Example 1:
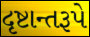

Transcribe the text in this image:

દૃષ્ટાન્તરૂપે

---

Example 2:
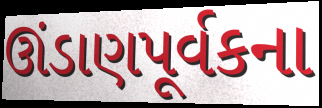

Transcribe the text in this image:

ઊંડાણપૂર્વકના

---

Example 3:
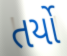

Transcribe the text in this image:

તર્યો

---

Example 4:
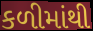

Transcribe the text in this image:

કળીમાંથી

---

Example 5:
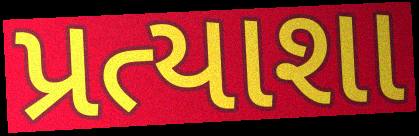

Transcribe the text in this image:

પ્રત્યાશા